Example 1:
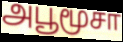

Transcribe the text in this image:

அபூமூசா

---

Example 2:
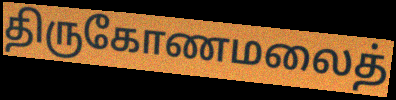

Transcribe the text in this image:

திருகோணமலைத்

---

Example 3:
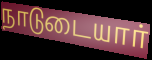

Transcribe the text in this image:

நாடுடையார்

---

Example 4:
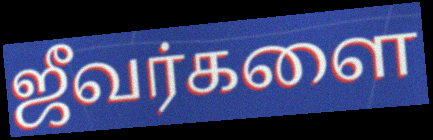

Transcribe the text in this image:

ஜீவர்களை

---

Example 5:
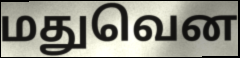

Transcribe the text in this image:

மதுவென